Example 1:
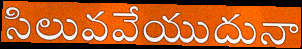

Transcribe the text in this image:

సిలువవేయుదునా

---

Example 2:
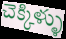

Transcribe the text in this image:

చెక్కిళ్ళు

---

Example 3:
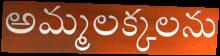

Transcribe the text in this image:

అమ్మలక్కలను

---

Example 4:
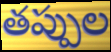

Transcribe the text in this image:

తప్పుల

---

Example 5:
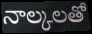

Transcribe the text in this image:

నాల్కలతో